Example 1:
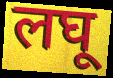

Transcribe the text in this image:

लघू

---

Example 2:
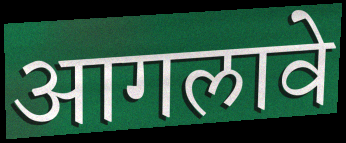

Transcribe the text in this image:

आगलावे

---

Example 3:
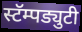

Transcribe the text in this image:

स्टॅम्पड्युटी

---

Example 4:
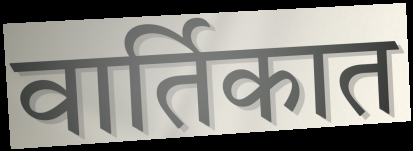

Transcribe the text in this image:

वार्तिकात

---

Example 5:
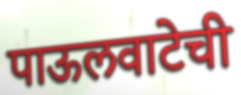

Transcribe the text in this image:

पाऊलवाटेची